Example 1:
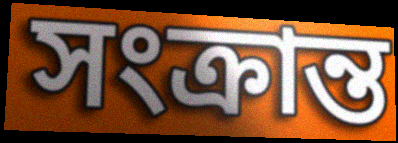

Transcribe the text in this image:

সংক্ৰান্ত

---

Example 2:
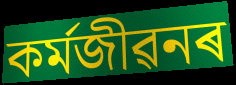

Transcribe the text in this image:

কৰ্মজীৱনৰ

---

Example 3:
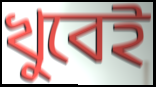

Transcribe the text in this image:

খুবেই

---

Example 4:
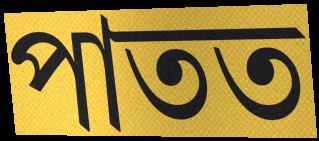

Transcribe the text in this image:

পাতত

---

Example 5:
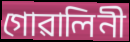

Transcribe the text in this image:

গোৱালিনী